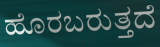
ಹೊರಬರುತ್ತದೆ